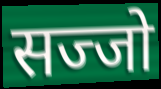
सज्जो